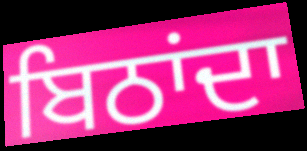
ਬਿਠਾਂਦਾ